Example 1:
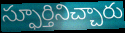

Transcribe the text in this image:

స్ఫూర్తినిచ్చారు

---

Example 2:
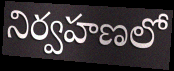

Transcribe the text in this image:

నిర్వహణలో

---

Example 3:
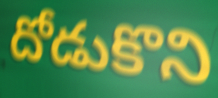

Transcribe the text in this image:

దోడుకొని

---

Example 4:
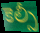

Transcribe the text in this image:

కెల్సీ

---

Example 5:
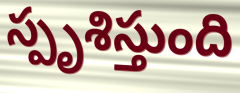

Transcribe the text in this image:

స్పృశిస్తుంది